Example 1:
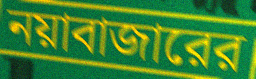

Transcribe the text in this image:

নয়াবাজারের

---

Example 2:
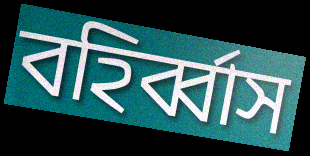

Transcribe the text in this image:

বহির্ব্বাস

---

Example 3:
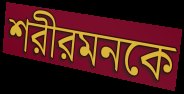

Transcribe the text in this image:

শরীরমনকে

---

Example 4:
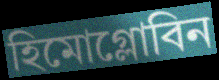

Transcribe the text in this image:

হিমোগ্লোবিন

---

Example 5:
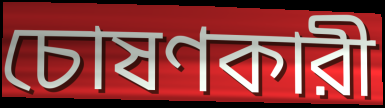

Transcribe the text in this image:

চোষণকারী